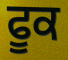
ਫੂਕ